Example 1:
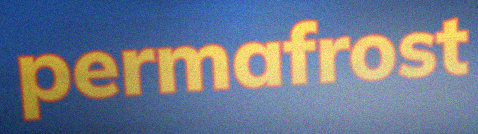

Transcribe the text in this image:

permafrost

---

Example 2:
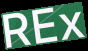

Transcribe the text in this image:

REx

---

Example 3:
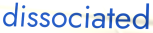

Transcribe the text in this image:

dissociated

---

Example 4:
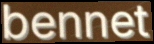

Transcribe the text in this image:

bennet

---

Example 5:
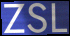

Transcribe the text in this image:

ZSL